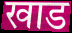
खाड